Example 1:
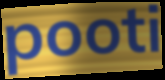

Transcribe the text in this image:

pooti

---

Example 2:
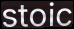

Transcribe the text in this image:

stoic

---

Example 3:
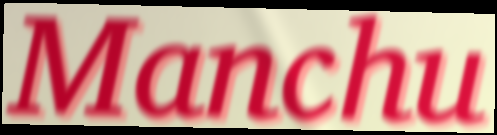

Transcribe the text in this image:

Manchu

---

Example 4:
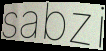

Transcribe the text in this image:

sabzi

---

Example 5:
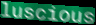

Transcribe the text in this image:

luscious